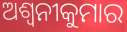
ଅଶ୍ୱନୀକୁମାର